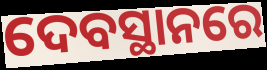
ଦେବସ୍ଥାନରେ